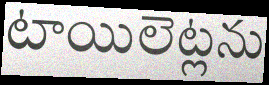
టాయిలెట్లను